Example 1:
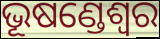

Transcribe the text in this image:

ଭୂଷଣ୍ଡେଶ୍ଵର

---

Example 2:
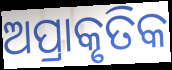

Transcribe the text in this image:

ଅପ୍ରାକୃତିକ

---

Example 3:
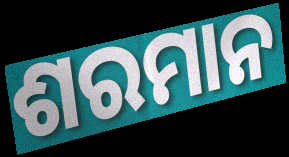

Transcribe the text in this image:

ଶରମାନ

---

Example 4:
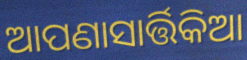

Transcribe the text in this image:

ଆପଣାସାର୍ତ୍ତିକିଆ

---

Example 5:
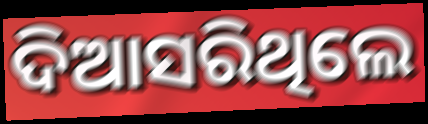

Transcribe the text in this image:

ଦିଆସରିଥିଲେ